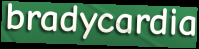
bradycardia